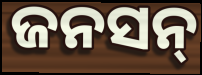
ଜନସନ୍